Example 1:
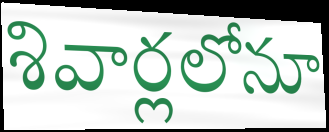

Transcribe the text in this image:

శివార్లలోనూ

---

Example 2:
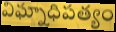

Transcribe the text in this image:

విఘ్నాధిపత్యం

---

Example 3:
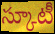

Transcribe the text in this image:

స్కూటీ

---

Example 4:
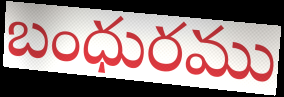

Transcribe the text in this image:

బంధురము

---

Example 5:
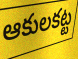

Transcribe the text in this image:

ఆకులకట్ట